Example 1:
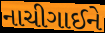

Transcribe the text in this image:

નાચીગાઈને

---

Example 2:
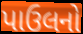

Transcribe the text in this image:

પાઉલનો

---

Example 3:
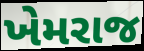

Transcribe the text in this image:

ખેમરાજ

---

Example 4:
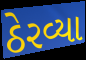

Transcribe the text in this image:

ઠેરવ્યા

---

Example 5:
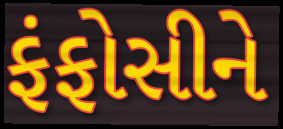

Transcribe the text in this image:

ફંફોસીને